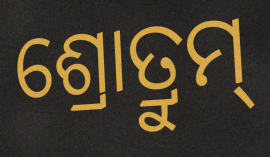
ଶ୍ରୋତ୍ରୁମ୍